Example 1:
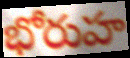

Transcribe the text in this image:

భోరుహ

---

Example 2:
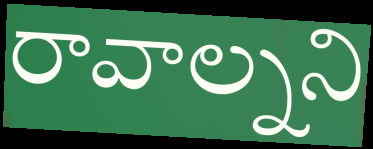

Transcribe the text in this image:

రావాల్నని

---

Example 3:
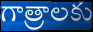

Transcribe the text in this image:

గాత్రాలకు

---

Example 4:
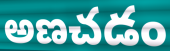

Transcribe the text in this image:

అణచడం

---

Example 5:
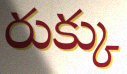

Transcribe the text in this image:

రుక్కు